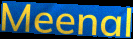
Meenal